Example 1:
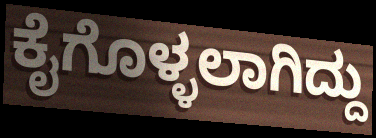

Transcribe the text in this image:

ಕೈಗೊಳ್ಳಲಾಗಿದ್ದು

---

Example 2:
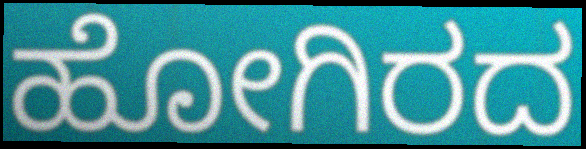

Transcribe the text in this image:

ಹೋಗಿರದ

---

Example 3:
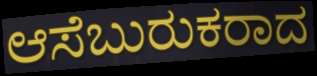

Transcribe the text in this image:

ಆಸೆಬುರುಕರಾದ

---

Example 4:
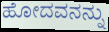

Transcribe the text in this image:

ಹೋದವನನ್ನು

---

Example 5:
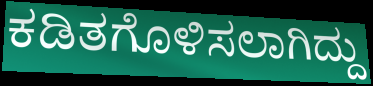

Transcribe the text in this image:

ಕಡಿತಗೊಳಿಸಲಾಗಿದ್ದು